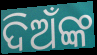
ଦିଅଁଙ୍କ